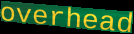
overhead